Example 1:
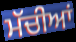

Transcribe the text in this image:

ਮੱਚੀਆਂ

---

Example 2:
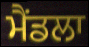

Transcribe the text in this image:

ਮੈਂਡਲਾ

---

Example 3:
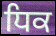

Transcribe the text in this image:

ਧਿਕ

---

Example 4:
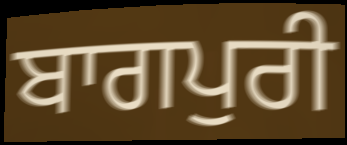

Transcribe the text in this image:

ਬਾਗਪੁਰੀ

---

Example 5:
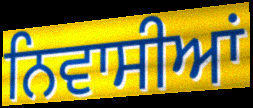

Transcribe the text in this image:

ਨਿਵਾਸੀਆਂ